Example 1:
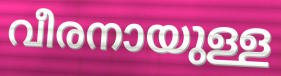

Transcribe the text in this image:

വീരനായുള്ള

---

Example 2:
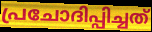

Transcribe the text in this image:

പ്രചോദിപ്പിച്ചത്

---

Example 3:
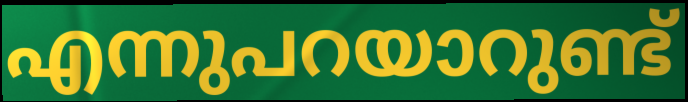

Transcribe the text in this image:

എന്നുപറയാറുണ്ട്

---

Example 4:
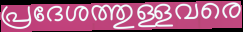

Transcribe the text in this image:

പ്രദേശത്തുള്ളവരെ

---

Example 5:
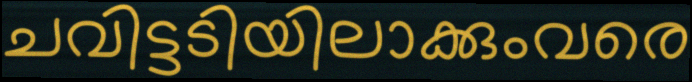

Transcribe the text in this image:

ചവിട്ടടിയിലാക്കുംവരെ